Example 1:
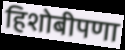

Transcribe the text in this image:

हिशोबीपणा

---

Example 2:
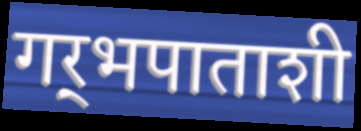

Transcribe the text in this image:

गर्भपाताशी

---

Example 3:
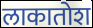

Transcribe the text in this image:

लाकातोश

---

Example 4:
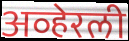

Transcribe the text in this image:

अव्हेरली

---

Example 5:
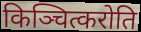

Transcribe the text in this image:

किञ्चित्करोति